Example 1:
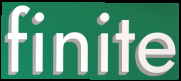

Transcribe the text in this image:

finite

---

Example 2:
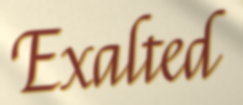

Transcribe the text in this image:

Exalted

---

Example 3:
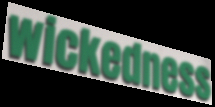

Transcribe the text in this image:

wickedness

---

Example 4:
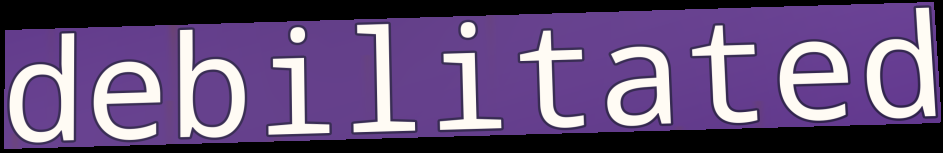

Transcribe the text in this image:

debilitated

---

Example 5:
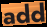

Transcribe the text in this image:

add